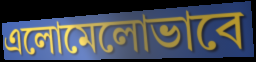
এলোমেলোভাবে